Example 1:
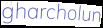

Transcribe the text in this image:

gharcholun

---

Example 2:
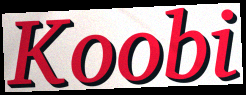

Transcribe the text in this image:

Koobi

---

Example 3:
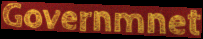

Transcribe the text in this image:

Governmnet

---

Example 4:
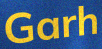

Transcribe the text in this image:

Garh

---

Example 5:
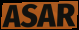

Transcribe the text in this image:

ASAR